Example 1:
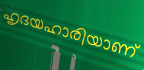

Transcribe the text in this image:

ഹൃദയഹാരിയാണ്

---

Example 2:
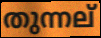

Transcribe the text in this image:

തുന്നല്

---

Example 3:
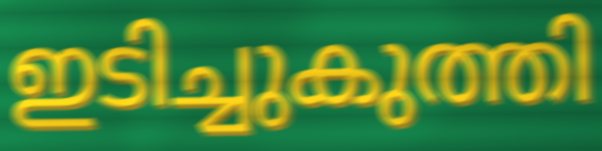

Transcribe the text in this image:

ഇടിച്ചുകുത്തി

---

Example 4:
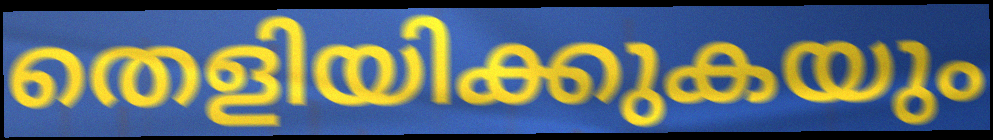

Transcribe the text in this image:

തെളിയിക്കുകയും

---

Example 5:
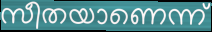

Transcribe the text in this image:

സീതയാണെന്ന്